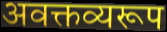
अवक्तव्यरूप